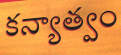
కన్యాత్వం